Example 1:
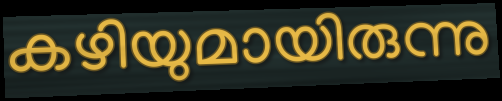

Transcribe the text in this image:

കഴിയുമായിരുന്നു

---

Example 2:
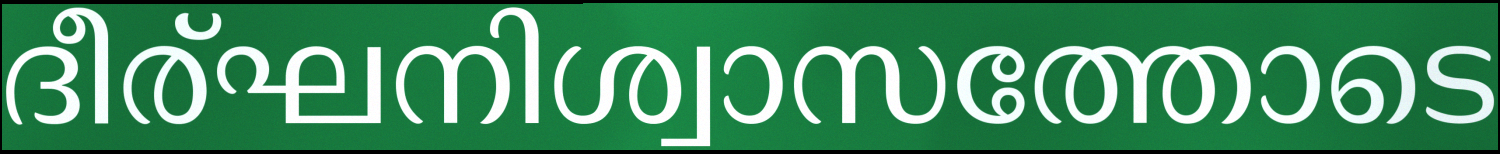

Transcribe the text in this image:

ദീര്ഘനിശ്വാസത്തോടെ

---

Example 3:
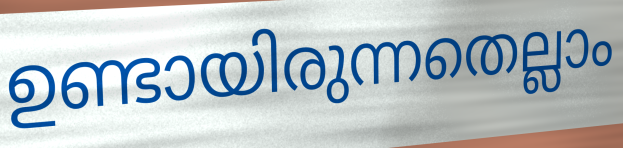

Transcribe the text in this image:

ഉണ്ടായിരുന്നതെല്ലാം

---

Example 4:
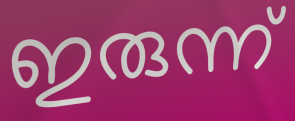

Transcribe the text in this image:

ഇരുന്ന്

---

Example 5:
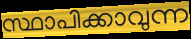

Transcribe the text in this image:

സ്ഥാപിക്കാവുന്ന